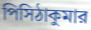
পিসিঠাকুমার